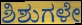
ಶಿಶುಗಳೇ